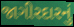
જાગીરદારનું